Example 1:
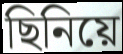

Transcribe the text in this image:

ছিনিয়ে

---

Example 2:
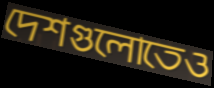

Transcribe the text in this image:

দেশগুলোতেও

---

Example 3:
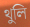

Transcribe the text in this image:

থুলি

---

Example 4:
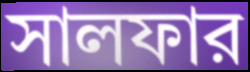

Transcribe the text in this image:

সালফার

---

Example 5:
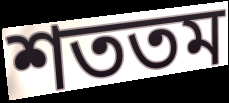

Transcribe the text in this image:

শততম